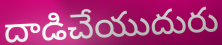
దాడిచేయుదురు